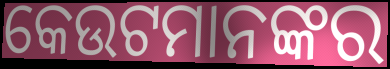
କେଉଟମାନଙ୍କର